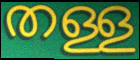
തള്ള